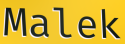
Malek